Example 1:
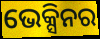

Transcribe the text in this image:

ଭେକ୍ସିନର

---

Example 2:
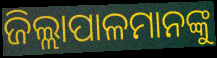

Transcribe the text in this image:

ଜିଲ୍ଲାପାଳମାନଙ୍କୁ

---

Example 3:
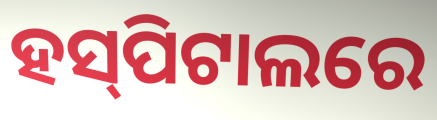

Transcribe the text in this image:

ହସ୍‌ପିଟାଲରେ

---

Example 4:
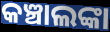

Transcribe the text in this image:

କଞ୍ଚାଲଙ୍କା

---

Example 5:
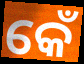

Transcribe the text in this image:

କେଁ